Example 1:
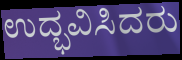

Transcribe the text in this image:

ಉದ್ಭವಿಸಿದರು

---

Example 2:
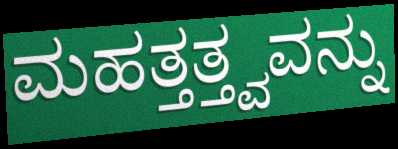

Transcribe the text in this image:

ಮಹತ್ತತ್ತ್ವವನ್ನು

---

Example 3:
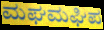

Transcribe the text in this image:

ಮಘಮಘಿಪ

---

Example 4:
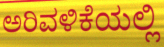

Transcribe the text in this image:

ಅರಿವಳಿಕೆಯಲ್ಲಿ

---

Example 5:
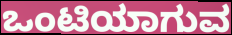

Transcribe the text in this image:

ಒಂಟಿಯಾಗುವ